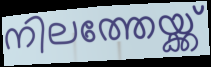
നിലത്തേയ്ക്ക്